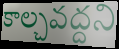
కాల్చవద్దని